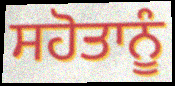
ਸਹੋਤਾਨੂੰ